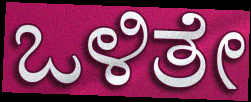
ಒಳಿತೇ